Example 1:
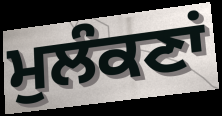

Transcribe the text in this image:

ਮੁਲੰਕਣਾਂ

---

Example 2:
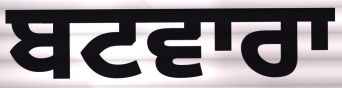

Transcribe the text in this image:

ਬਟਵਾਰਾ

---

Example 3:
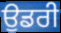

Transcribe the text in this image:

ਉਡਰੀ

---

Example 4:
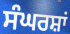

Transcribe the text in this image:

ਸੰਘਰਸ਼ਾਂ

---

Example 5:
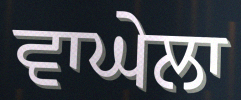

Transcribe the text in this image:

ਵਾਘੇਲਾ